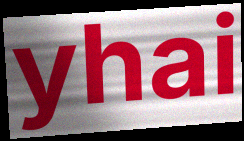
yhai